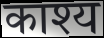
काश्य